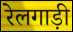
रेलगाड़ी